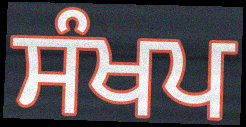
ਸੰਖਪ